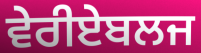
ਵੇਰੀਏਬਲਜ